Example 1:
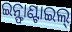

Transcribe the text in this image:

ଇନ୍ଫାଣ୍ଟାଇଲ୍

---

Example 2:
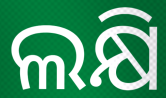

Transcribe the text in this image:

ଲକ୍ଷି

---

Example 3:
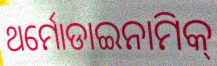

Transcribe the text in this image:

ଥର୍ମୋଡାଇନାମିକ୍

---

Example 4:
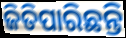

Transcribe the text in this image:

ଜିତିପାରିଛନ୍ତି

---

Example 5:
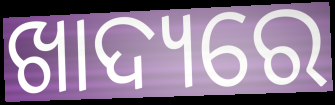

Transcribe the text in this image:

ଖାଦ୍ୟରେ